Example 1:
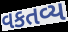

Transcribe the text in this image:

વકતવ્ય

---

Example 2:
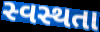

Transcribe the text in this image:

સ્વસ્થતા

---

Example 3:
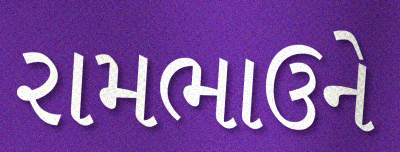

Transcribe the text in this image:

રામભાઉને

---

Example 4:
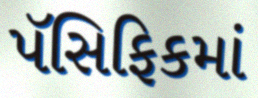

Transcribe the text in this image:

પૅસિફિકમાં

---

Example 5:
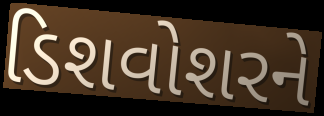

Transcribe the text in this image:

ડિશવોશરને